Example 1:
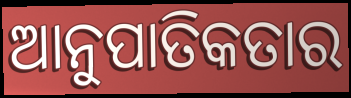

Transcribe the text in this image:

ଆନୁପାତିକତାର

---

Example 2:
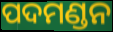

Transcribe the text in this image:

ପଦମଣ୍ଡନ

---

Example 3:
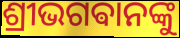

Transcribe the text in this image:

ଶ୍ରୀଭଗଵାନଙ୍କୁ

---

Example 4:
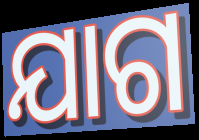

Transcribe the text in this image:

ଯାଗ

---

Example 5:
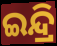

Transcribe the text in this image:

ଇନ୍ଦ୍ରି